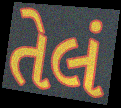
તેલં